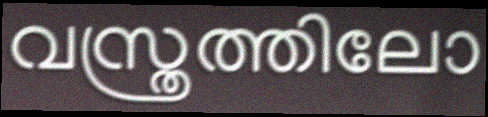
വസ്ത്രത്തിലോ